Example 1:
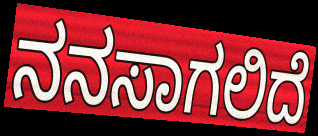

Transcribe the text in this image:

ನನಸಾಗಲಿದೆ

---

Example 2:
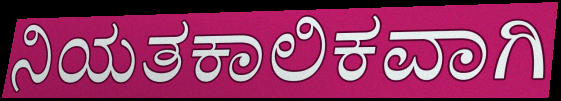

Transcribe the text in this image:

ನಿಯತಕಾಲಿಕವಾಗಿ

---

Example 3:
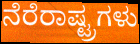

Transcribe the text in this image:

ನೆರೆರಾಷ್ಟ್ರಗಳು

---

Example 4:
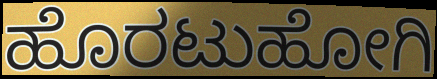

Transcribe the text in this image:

ಹೊರಟುಹೋಗಿ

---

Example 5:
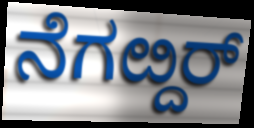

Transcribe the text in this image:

ನೆಗೞ್ದರ್